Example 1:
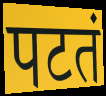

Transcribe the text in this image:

पटतं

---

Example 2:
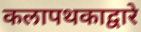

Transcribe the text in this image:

कलापथकाद्वारे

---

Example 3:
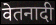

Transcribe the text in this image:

वेतनादी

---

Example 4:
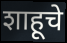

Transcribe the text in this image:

शाहूचे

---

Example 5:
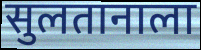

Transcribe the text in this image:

सुलतानाला